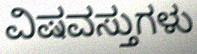
ವಿಷವಸ್ತುಗಳು